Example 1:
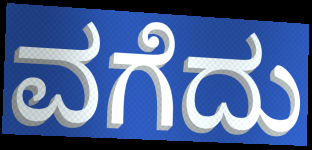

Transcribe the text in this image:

ವಗೆದು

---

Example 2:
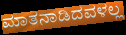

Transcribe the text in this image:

ಮಾತನಾಡಿದವಳಲ್ಲ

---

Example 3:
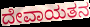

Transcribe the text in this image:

ದೇವಾಯತನ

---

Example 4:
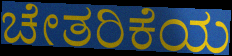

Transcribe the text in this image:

ಚೇತರಿಕೆಯ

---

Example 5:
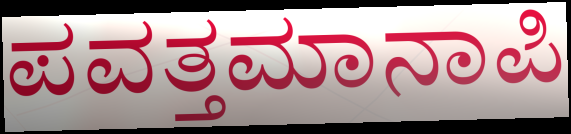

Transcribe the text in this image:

ಪವತ್ತಮಾನಾಪಿ